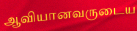
ஆவியானவருடைய